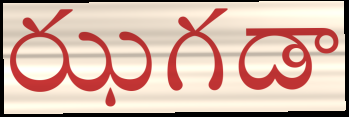
ఝగడా